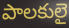
పాలకులై